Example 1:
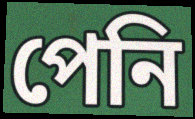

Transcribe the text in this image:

পেনি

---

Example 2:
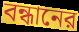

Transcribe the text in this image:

বন্ধানের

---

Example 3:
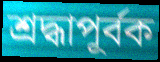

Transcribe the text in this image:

শ্রদ্ধাপূর্বক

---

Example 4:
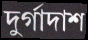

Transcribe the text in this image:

দুর্গাদাশ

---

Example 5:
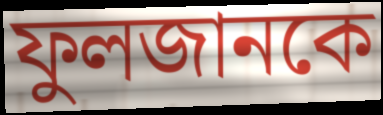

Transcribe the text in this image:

ফুলজানকে